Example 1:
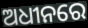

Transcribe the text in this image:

ଅଧୀନରେ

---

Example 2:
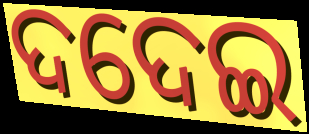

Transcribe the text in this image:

ଦଦେଇ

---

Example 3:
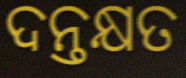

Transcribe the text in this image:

ଦନ୍ତକ୍ଷତ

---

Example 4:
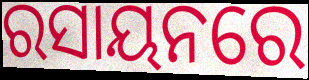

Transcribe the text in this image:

ରସାୟନରେ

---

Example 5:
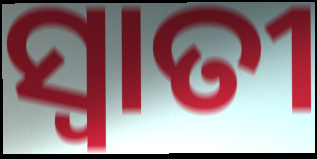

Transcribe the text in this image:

ସ୍ୱାତୀ